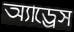
অ্যাড্রেস